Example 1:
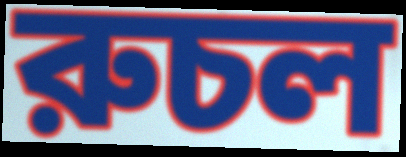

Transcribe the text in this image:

রুচল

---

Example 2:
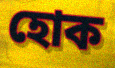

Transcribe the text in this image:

হোক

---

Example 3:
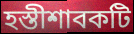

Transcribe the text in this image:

হস্তীশাবকটি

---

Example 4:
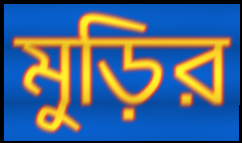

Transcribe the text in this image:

মুড়ির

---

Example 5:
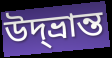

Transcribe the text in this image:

উদ্‌ভ্রান্ত